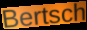
Bertsch